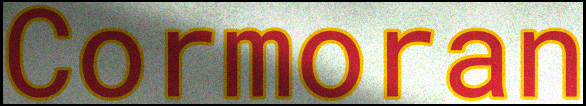
Cormoran